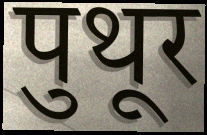
पुथूर